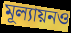
মূল্যায়নও